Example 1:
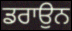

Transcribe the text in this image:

ਡਰਾਉਨ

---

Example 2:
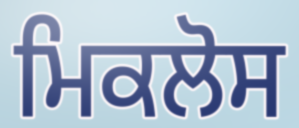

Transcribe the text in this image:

ਮਿਕਲੋਸ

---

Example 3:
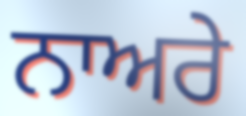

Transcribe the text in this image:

ਨਾਅਰੇ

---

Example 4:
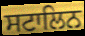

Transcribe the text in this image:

ਸਟਾਲਿਨ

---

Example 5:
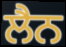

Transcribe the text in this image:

ਲੈਨ